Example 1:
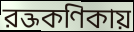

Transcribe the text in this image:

রক্তকণিকায়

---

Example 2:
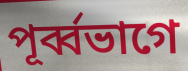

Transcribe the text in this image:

পূর্ব্বভাগে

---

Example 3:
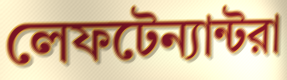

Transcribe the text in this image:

লেফটেন্যান্টরা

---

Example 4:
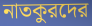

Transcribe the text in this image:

নাতকুরদের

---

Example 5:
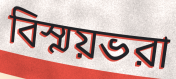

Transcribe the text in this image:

বিস্ময়ভরা